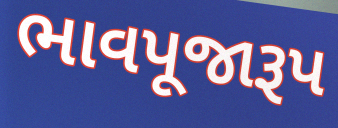
ભાવપૂજારૂપ